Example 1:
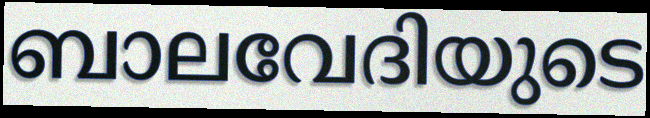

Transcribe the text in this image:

ബാലവേദിയുടെ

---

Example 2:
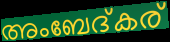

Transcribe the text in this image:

അംബേദ്കര്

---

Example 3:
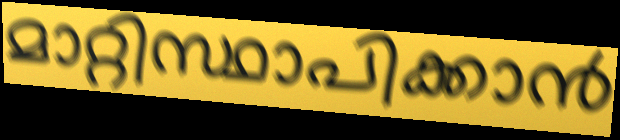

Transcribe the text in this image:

മാറ്റിസ്ഥാപിക്കാൻ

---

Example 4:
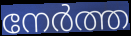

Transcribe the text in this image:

നേർത്ത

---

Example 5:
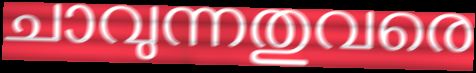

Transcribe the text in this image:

ചാവുന്നതുവരെ